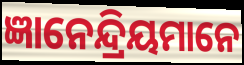
ଜ୍ଞାନେନ୍ଦ୍ରିୟମାନେ